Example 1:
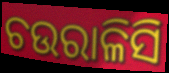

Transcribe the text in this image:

ଚଉରାଳିସି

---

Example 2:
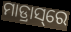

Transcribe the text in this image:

ମାଡ୍ରାସ୍‌ରେ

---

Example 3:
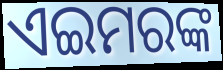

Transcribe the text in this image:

ଏଇମରଙ୍କ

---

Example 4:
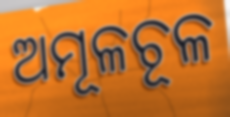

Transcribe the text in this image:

ଅମୂଳଚୂଳ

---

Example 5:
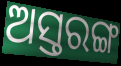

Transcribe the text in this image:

ଅସ୍ତରଙ୍ଗ